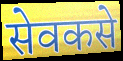
सेवकसे